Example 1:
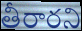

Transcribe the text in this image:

తీరారని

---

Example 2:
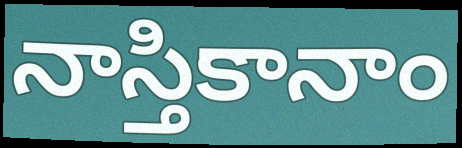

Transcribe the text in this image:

నాస్తికానాం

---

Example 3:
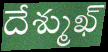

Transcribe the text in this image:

దేశ్ముఖ్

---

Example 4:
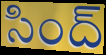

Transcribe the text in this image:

సింద్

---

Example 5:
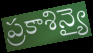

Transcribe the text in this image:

ప్రకాశిన్యై